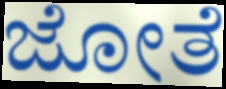
ಜೋತೆ